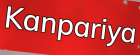
Kanpariya